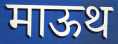
माऊथ